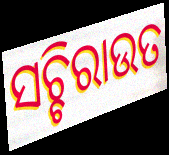
ସଚ୍ଚିରାଉତ